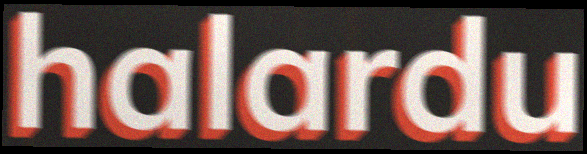
halardu